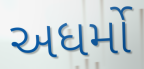
અધર્મો